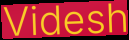
Videsh